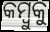
କମ୍ବୁକୁ